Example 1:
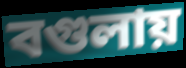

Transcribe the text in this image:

বগুলায়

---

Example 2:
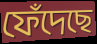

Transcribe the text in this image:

ফেঁদেছে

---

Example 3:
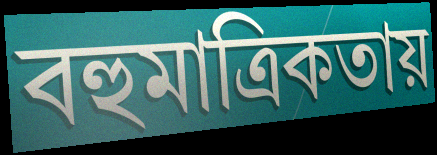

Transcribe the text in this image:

বহুমাত্রিকতায়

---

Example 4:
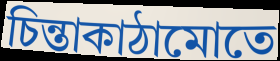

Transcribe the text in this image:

চিন্তাকাঠামোতে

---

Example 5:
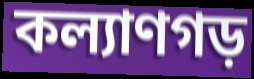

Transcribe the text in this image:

কল্যাণগড়